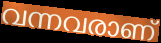
വന്നവരാണ്